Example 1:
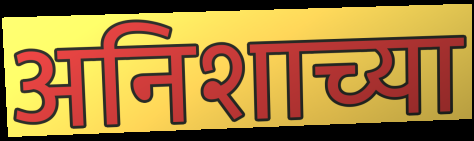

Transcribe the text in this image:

अनिशाच्या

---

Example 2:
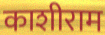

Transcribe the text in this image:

काशीराम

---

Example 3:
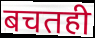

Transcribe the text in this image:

बचतही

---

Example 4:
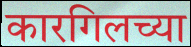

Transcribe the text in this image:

कारगिलच्या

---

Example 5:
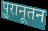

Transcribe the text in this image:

पुरानूतन